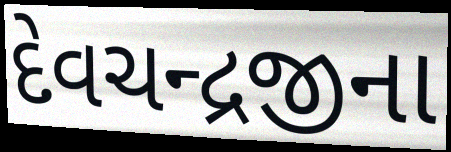
દેવચન્દ્રજીના